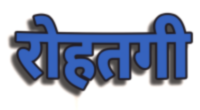
रोहतगी